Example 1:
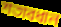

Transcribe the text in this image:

শতাবধান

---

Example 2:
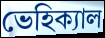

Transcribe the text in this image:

ভেহিক্যাল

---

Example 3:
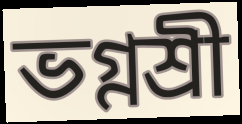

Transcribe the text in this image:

ভগ্নশ্রী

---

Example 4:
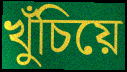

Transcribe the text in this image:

খুঁচিয়ে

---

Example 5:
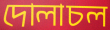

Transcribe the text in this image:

দোলাচল